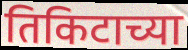
तिकिटाच्या